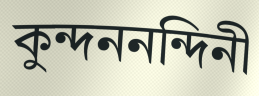
কুন্দননন্দিনী